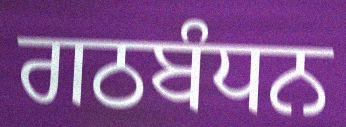
ਗਠਬੰਧਨ